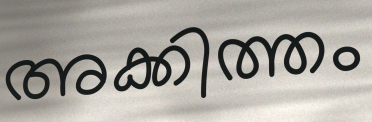
അക്കിത്തം